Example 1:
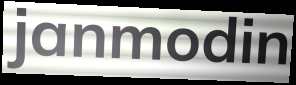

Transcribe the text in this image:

janmodin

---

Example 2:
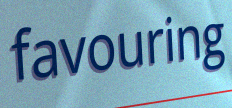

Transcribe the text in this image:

favouring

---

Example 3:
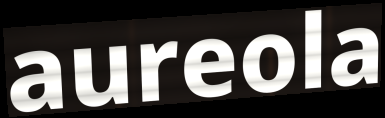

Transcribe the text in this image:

aureola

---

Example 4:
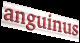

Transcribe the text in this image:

anguinus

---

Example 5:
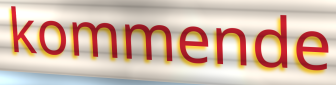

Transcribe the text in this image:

kommende